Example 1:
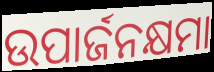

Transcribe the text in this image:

ଉପାର୍ଜନକ୍ଷମା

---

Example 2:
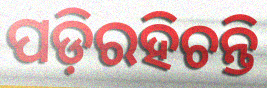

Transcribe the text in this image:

ପଡ଼ିରହିଚନ୍ତି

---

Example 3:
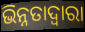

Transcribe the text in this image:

ଭିନ୍ନତାଦ୍ୱାରା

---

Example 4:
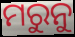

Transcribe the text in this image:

ମରୁନୁ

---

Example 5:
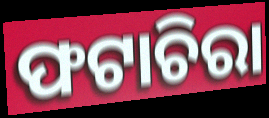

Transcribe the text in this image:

ଫଟାଚିରା